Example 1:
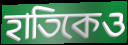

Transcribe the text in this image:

হাতিকেও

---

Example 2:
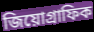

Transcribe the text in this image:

জিয়োগ্রাফিক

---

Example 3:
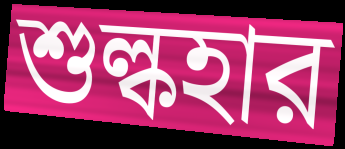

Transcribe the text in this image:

শুল্কহার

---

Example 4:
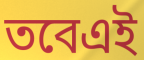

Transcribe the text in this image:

তবেএই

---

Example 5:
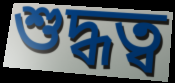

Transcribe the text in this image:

শুদ্ধত্ব